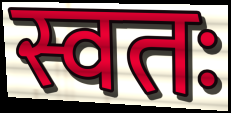
स्वतः